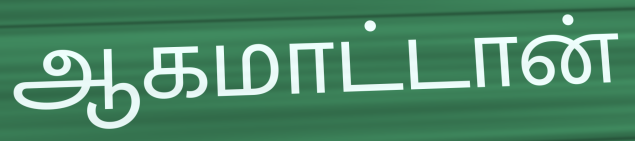
ஆகமாட்டான்